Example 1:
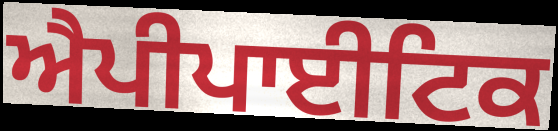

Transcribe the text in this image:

ਐਪੀਪਾਈਟਿਕ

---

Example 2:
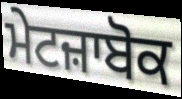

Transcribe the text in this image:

ਮੇਟਜ਼ਾਬੋਕ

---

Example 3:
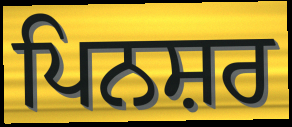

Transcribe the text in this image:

ਪਿਨਸ਼ਰ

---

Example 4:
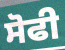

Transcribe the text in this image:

ਸੋਫੀ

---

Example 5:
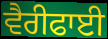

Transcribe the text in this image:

ਵੈਰੀਫਾਈ